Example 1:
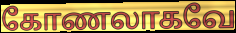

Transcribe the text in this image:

கோணலாகவே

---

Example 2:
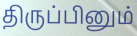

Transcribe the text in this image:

திருப்பினும்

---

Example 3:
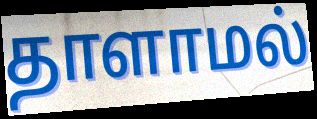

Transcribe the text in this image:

தாளாமல்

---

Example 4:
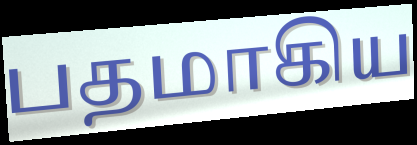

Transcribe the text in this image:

பதமாகிய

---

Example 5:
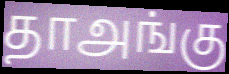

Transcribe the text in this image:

தாஅங்கு